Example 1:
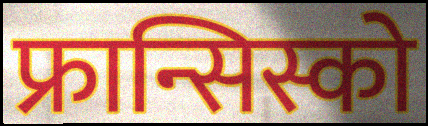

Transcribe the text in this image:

फ्रान्सिस्को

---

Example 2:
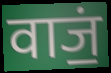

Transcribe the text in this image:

वाजं॒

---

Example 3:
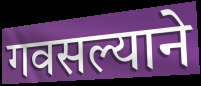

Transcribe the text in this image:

गवसल्याने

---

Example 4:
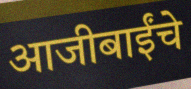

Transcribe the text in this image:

आजीबाईंचे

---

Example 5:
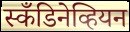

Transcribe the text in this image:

स्कँडिनेव्हियन